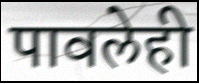
पावलेही